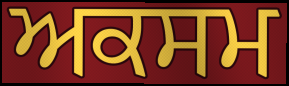
ਅਕਸਮ